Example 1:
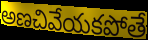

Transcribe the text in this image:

అణచివేయకపోతే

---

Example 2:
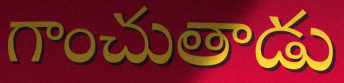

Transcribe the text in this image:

గాంచుతాడు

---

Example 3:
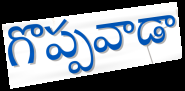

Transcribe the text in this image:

గొప్పవాడా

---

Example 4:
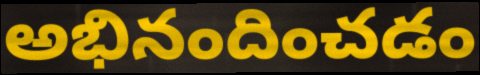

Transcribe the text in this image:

అభినందించడం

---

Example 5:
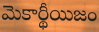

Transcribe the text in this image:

మెకార్థీయిజం